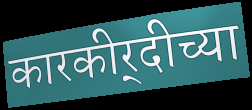
कारकीर्दीच्या